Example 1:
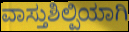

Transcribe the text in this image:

ವಾಸ್ತುಶಿಲ್ಪಿಯಾಗಿ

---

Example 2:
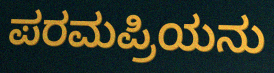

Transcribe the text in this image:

ಪರಮಪ್ರಿಯನು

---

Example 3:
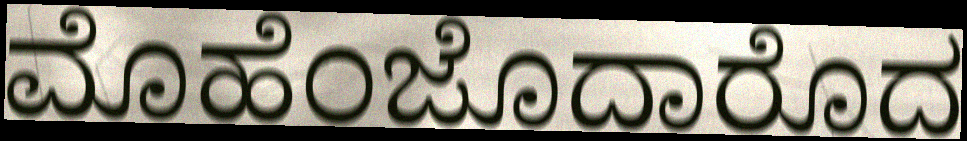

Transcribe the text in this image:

ಮೊಹೆಂಜೊದಾರೊದ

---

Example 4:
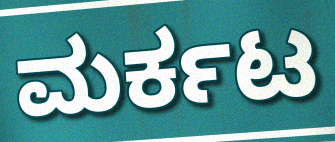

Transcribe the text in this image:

ಮರ್ಕಟ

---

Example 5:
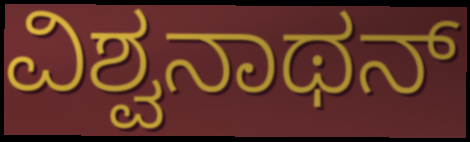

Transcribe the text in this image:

ವಿಶ್ವನಾಥನ್